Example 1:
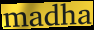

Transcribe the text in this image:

madha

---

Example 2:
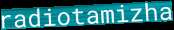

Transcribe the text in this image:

radiotamizha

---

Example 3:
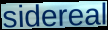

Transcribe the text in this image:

sidereal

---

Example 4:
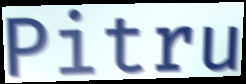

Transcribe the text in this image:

Pitru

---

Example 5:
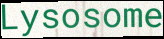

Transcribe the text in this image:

Lysosome